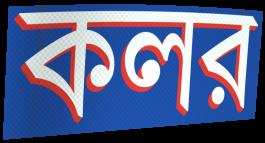
কলর